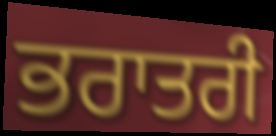
ਭਰਾਤਰੀ